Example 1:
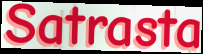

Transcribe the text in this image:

Satrasta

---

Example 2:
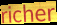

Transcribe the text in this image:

richer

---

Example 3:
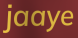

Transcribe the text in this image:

jaaye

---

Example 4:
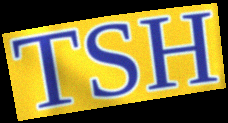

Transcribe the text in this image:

TSH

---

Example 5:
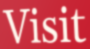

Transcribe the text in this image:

Visit